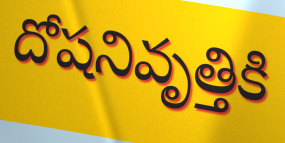
దోషనివృత్తికి